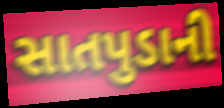
સાતપુડાની